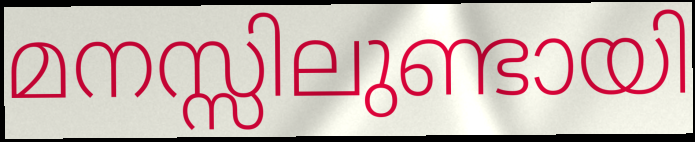
മനസ്സിലുണ്ടായി